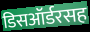
डिसऑर्डरसह